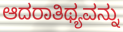
ಆದರಾತಿಥ್ಯವನ್ನು